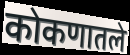
कोकणातले